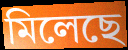
মিলেছে